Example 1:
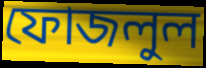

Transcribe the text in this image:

ফোজলুল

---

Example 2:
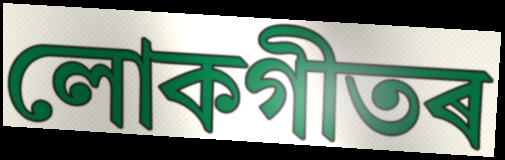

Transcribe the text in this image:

লোকগীতৰ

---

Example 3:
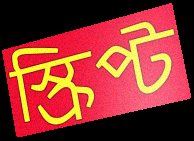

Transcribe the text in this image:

স্ক্ৰিপ্ট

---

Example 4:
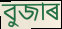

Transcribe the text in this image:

বুজাৰ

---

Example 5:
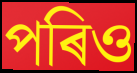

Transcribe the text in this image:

পৰিও